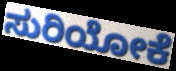
ಸುರಿಯೋಕೆ